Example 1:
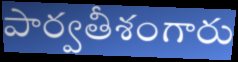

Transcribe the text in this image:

పార్వతీశంగారు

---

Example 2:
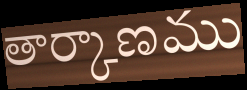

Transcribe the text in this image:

తార్కాణము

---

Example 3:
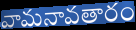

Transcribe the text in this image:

వామనావతారం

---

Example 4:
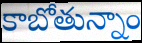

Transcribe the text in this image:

కాబోతున్నాం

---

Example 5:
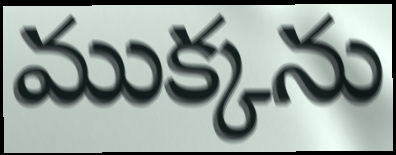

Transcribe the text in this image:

ముక్కను